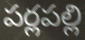
పర్లపల్లి